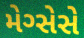
મેગ્સેસે